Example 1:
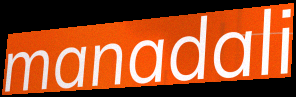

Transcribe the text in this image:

manadali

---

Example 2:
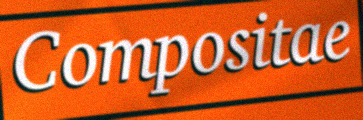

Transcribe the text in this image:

Compositae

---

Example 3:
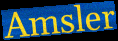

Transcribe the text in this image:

Amsler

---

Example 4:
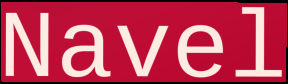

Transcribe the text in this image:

Navel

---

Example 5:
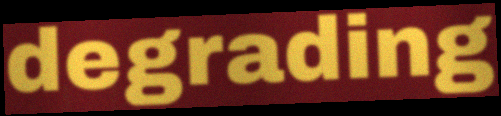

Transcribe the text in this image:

degrading